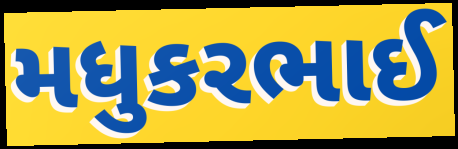
મધુકરભાઈ